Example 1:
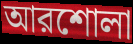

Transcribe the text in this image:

আরশোলা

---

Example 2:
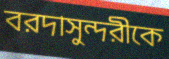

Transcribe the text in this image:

বরদাসুন্দরীকে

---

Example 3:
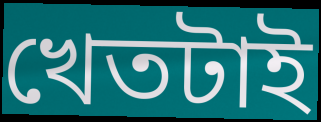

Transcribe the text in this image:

খেতটাই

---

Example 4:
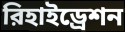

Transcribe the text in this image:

রিহাইড্রেশন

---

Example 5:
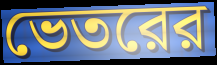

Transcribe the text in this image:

ভেতরের